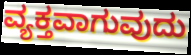
ವ್ಯಕ್ತವಾಗುವುದು